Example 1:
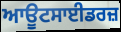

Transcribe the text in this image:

ਆਊਟਸਾਈਡਰਜ਼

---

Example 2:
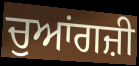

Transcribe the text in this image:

ਚੁਆਂਗਜ਼ੀ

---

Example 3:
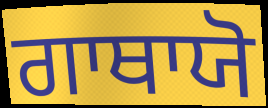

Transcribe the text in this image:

ਗਾਥਾਯੋ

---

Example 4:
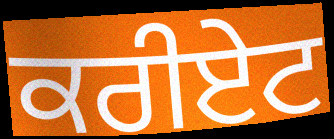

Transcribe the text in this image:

ਕਰੀਏਟ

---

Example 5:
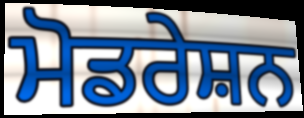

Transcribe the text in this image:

ਮੋਡਰੇਸ਼ਨ